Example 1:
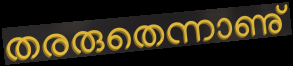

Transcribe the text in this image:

തരരുതെന്നാണു്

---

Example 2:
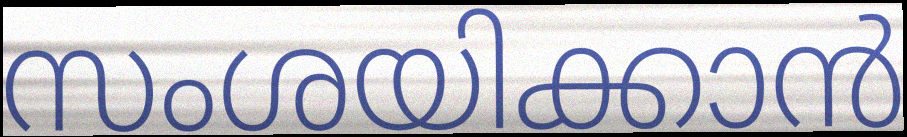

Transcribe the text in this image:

സംശയിക്കാൻ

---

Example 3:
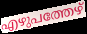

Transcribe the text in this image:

എഴുപത്തേഴ്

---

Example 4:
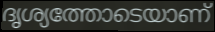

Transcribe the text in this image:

ദൃശ്യത്തോടെയാണ്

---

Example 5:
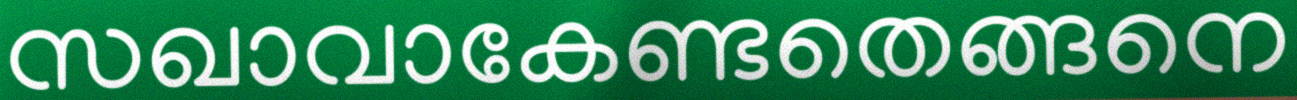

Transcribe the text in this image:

സഖാവാകേണ്ടതെങ്ങനെ